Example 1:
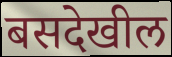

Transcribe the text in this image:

बसदेखील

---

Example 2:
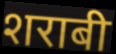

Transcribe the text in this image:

शराबी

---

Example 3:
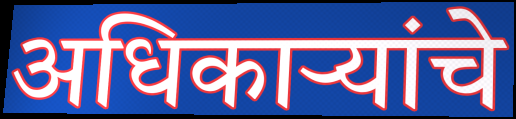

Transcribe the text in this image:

अधिकाऱ्यांचे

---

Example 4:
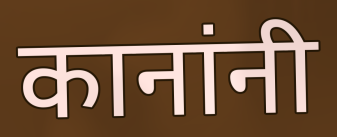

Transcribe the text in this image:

कानांनी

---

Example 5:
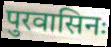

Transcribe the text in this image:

पुरवासिनः